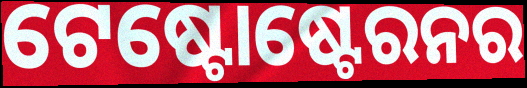
ଟେଷ୍ଟୋଷ୍ଟେରନର